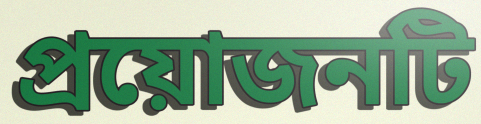
প্রয়োজনটি